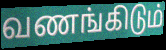
வணங்கிடும்